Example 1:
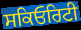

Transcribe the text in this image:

ਸਕਿਓਰਿਟੀ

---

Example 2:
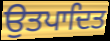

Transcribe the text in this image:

ਉਤਪਾਦਿਤ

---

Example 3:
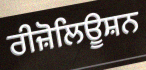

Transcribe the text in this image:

ਰੀਜ਼ੋਲਿਊਸ਼ਨ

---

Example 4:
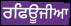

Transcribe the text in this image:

ਰਫਿਊਜੀਆ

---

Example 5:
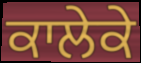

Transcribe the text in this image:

ਕਾਲੇਕੇ